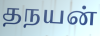
தநயன்